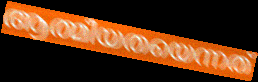
ആത്മീയതയെന്നത്